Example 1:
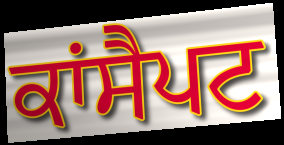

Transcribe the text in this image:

ਕਾਂਸੈਪਟ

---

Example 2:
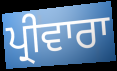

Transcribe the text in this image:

ਪ੍ਰੀਵਾਰਾ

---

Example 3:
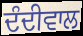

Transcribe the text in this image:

ਦੰਦੀਵਾਲ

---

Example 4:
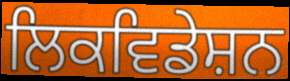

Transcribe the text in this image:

ਲਿਕਵਿਡੇਸ਼ਨ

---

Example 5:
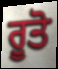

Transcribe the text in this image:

ਰੂਤੋ